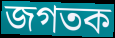
জগতক